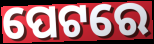
ପେଟରେ